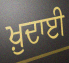
ਖ਼ੁਦਾਈ